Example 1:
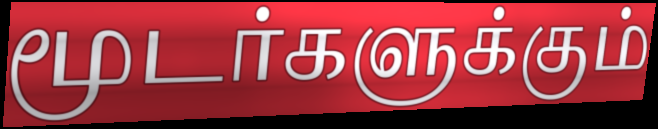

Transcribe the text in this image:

மூடர்களுக்கும்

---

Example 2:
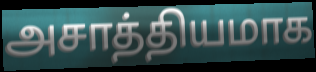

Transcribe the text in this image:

அசாத்தியமாக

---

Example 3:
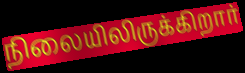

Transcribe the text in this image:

நிலையிலிருக்கிறார்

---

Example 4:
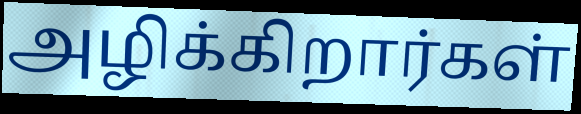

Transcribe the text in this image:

அழிக்கிறார்கள்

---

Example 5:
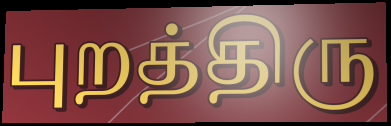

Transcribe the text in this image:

புறத்திரு